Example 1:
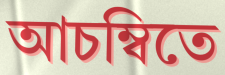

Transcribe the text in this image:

আচম্বিতে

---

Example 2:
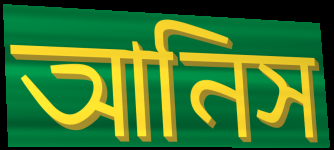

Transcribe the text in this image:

আনিস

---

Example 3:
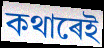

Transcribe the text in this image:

কথাৰেই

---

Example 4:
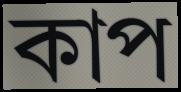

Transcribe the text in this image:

কাপ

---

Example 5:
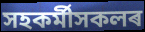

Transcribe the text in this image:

সহকৰ্মীসকলৰ